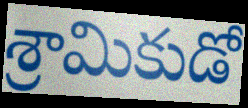
శ్రామికుడో